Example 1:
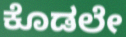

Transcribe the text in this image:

ಕೊಡಲೇ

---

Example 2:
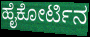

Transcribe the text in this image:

ಹೈಕೋರ್ಟಿನ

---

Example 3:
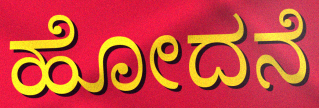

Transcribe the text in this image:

ಹೋದನೆ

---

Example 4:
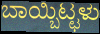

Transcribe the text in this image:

ಬಾಯ್ಬಿಟ್ಟಳು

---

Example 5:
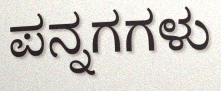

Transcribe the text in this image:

ಪನ್ನಗಗಳು